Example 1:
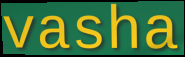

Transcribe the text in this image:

vasha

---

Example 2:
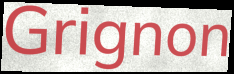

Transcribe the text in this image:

Grignon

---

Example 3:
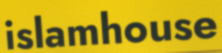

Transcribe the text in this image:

islamhouse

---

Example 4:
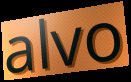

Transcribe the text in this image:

alvo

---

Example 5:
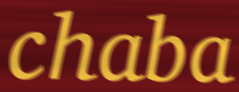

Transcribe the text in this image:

chaba